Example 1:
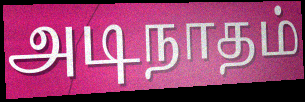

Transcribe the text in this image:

அடிநாதம்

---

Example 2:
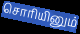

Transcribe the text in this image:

சொரியினும்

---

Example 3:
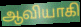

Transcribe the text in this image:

ஆவியாகி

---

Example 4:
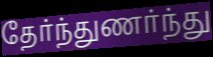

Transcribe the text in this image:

தேர்ந்துணர்ந்து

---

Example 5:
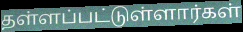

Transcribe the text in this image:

தள்ளப்பட்டுள்ளார்கள்